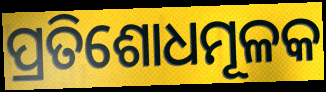
ପ୍ରତିଶୋଧମୂଳକ